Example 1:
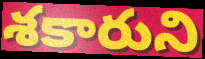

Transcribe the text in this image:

శకారుని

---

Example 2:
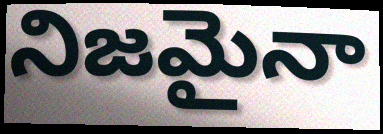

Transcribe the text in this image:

నిజమైనా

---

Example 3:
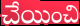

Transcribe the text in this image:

చేయించి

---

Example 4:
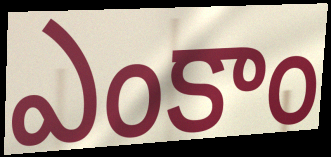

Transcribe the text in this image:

ఎంకాం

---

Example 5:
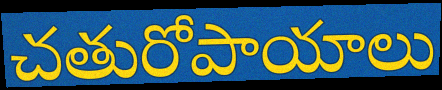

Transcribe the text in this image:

చతురోపాయాలు